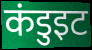
कंडुइट